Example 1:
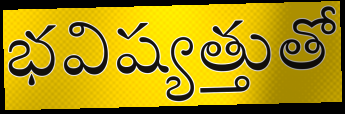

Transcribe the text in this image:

భవిష్యత్తుతో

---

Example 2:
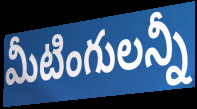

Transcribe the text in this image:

మీటింగులన్నీ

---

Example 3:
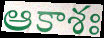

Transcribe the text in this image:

ఆకాశః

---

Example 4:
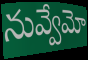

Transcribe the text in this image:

నువ్వేమో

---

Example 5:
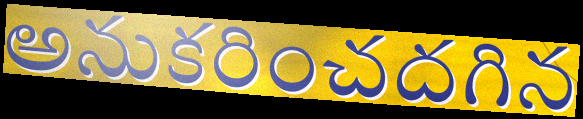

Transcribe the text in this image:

అనుకరించదగిన